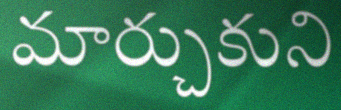
మార్చుకుని